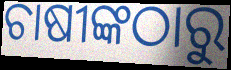
ଚାଷୀଙ୍କଠାରୁ